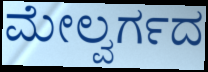
ಮೇಲ್ವರ್ಗದ